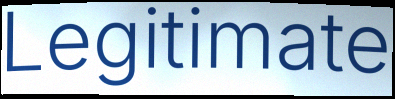
Legitimate